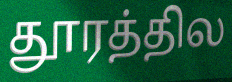
தூரத்தில